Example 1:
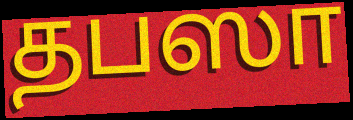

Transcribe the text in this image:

தபஸா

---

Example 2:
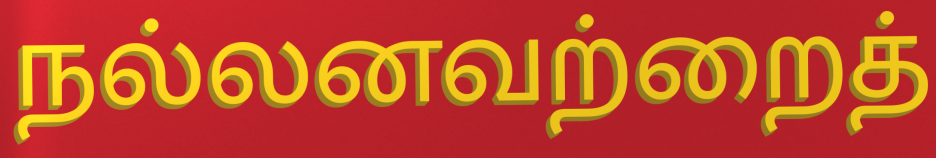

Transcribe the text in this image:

நல்லனவற்றைத்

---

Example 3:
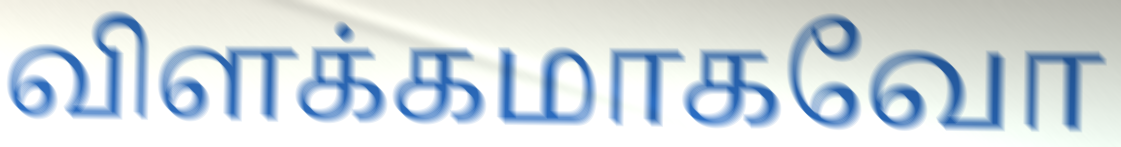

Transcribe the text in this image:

விளக்கமாகவோ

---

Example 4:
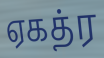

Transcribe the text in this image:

ஏகத்ர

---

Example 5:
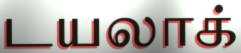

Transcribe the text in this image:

டயலாக்